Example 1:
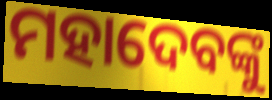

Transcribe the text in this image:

ମହାଦେବଙ୍କୁ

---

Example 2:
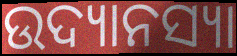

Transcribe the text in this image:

ଉଦ୍ୟାନସ୍ୟା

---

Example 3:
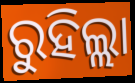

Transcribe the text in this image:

ରୁହିଲ୍ଲା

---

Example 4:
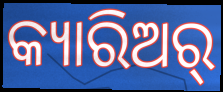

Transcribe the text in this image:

କ୍ୟାରିଅର୍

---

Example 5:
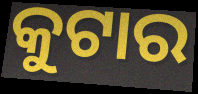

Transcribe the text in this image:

କୁଟାର